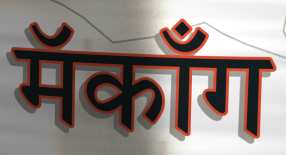
मॅकाँग